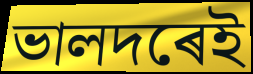
ভালদৰেই